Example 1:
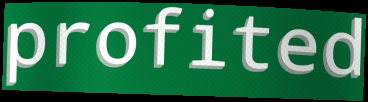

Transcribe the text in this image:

profited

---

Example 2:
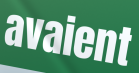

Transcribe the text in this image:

avaient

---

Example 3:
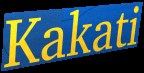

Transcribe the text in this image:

Kakati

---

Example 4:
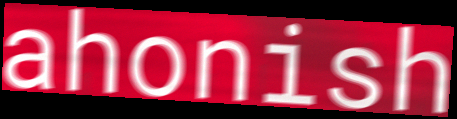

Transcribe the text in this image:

ahonish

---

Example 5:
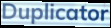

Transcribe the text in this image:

Duplicator